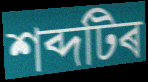
শব্দটিৰ